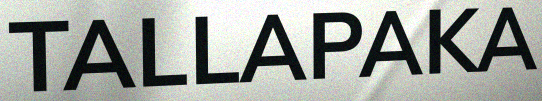
TALLAPAKA